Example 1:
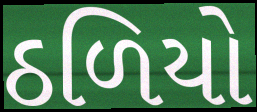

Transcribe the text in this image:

ઠળિયો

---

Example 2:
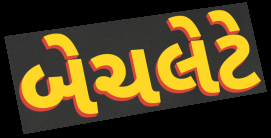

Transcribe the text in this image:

બેચલેટે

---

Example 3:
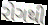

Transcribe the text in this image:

રોગથી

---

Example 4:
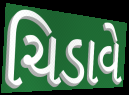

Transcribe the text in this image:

ચિડાવે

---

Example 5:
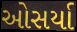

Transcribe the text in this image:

ઓસર્યા